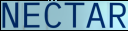
NECTAR